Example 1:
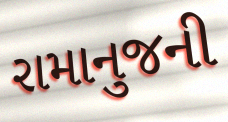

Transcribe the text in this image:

રામાનુજની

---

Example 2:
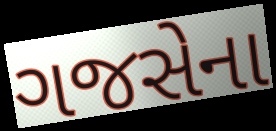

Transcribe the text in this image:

ગજસેના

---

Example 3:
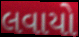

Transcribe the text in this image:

લવાયો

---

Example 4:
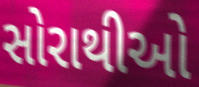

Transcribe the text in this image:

સોરાથીઓ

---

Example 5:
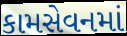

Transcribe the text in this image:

કામસેવનમાં